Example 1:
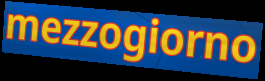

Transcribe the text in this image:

mezzogiorno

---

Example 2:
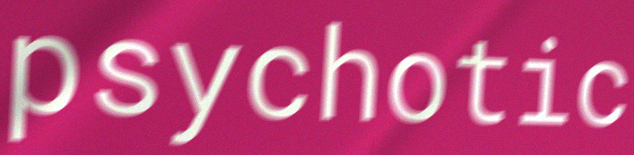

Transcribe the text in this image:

psychotic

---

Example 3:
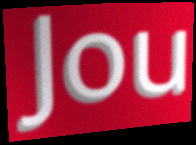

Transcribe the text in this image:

Jou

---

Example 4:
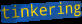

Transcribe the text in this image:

tinkering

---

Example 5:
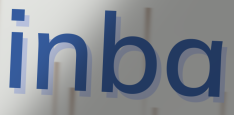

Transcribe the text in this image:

inba